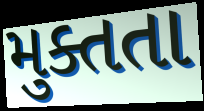
મુક્તતા